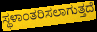
ಸ್ಥಳಾಂತರಿಸಲಾಗುತ್ತದೆ